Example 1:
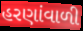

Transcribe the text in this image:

હરણાંવાળી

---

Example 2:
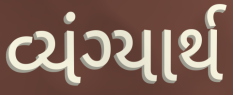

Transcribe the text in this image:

વ્યંગ્યાર્થ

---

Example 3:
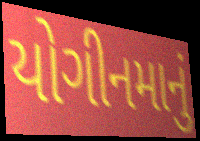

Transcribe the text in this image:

યોગીનમાનું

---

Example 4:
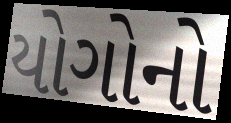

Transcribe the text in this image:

યોગોનો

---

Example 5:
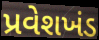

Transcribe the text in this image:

પ્રવેશખંડ